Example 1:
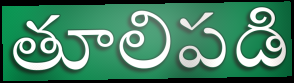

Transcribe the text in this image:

తూలిపడి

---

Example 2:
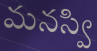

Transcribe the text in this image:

మనస్వి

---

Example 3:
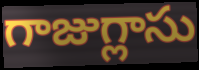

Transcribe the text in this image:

గాజుగ్లాసు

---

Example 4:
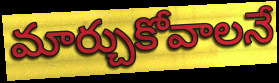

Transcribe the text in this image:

మార్చుకోవాలనే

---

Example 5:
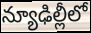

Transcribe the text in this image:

న్యూఢిల్లీలో